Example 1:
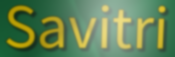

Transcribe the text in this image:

Savitri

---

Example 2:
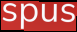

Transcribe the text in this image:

spus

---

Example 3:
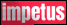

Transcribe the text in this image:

impetus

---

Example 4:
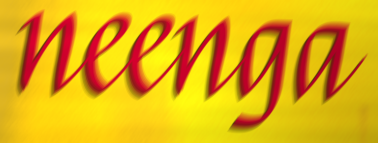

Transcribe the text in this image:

neenga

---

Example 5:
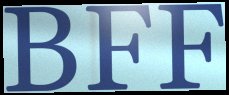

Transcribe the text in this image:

BFF